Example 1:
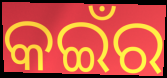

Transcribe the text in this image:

କଇଁର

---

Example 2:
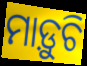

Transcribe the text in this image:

ମାଡ଼ୁଚି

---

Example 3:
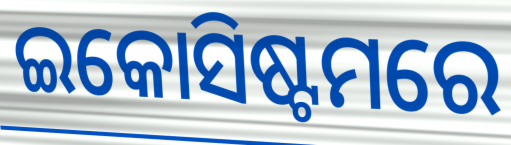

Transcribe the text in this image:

ଇକୋସିଷ୍ଟମରେ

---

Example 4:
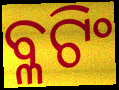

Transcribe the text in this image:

ବ୍ଳଟିଂ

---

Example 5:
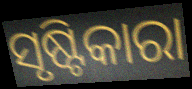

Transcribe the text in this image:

ସୃଷ୍ଟିକାରା